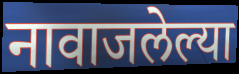
नावाजलेल्या